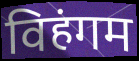
विहंगम